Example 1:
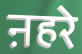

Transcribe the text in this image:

ऩहरे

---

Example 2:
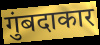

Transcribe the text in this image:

गुंबदाकार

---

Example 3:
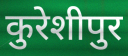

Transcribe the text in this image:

कुरेशीपुर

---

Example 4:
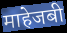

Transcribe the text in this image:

माहेजबी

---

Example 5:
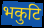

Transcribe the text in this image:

भकुटि